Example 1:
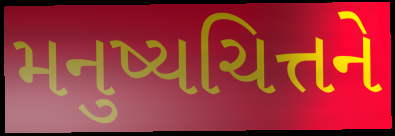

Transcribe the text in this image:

મનુષ્યચિત્તને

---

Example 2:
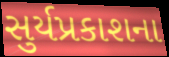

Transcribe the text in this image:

સુર્યપ્રકાશના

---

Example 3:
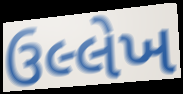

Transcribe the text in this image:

ઉલ્લેખ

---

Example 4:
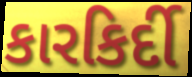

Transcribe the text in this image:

કારકિર્દી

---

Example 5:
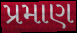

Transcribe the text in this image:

પ્રમાણ